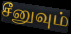
சீனுவும்